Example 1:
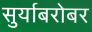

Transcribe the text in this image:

सुर्याबरोबर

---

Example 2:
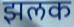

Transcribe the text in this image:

झलक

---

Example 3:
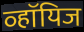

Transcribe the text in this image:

व्हॉयिज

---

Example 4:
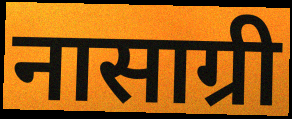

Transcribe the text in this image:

नासाग्री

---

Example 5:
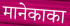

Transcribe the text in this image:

मानेकाका